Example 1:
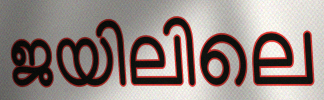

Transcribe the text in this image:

ജയിലിലെ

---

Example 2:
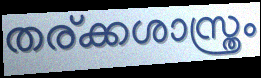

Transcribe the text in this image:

തര്ക്കശാസ്ത്രം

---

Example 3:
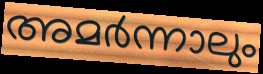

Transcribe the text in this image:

അമർന്നാലും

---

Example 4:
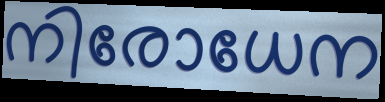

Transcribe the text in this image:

നിരോധേന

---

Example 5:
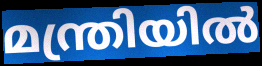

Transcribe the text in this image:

മന്ത്രിയിൽ